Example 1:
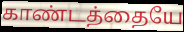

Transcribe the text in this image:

காண்டத்தையே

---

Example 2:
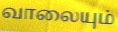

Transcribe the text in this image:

வாலையும்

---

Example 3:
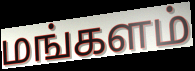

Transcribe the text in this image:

மங்களம்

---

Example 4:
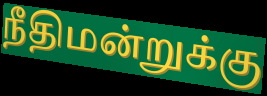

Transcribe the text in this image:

நீதிமன்றுக்கு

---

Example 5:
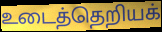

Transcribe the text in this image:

உடைத்தெறியக்